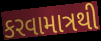
કરવામાત્રથી